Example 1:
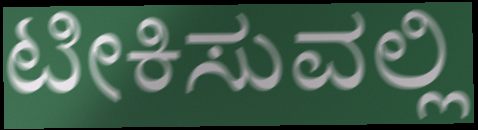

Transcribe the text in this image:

ಟೀಕಿಸುವಲ್ಲಿ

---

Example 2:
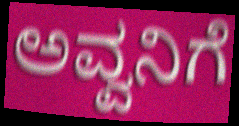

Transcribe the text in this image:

ಅವ್ವನಿಗೆ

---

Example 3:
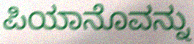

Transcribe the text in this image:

ಪಿಯಾನೊವನ್ನು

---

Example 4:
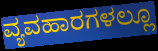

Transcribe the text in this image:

ವ್ಯವಹಾರಗಳಲ್ಲೂ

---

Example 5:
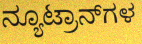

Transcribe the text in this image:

ನ್ಯೂಟ್ರಾನ್‌ಗಳ